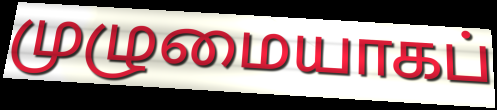
முழுமையாகப்